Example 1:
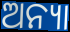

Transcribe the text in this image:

ଅନ୍ୟା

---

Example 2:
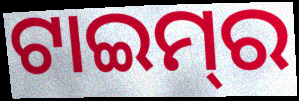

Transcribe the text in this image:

ଟାଇମ୍‌ର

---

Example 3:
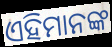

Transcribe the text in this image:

ଏହିମାନଙ୍କ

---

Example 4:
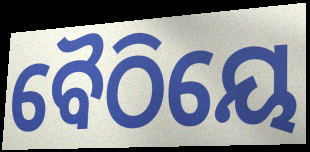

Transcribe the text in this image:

ବୈଠିୟେ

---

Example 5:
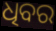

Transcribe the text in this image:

ଧିବର